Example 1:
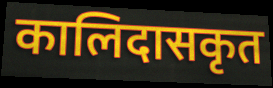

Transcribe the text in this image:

कालिदासकृत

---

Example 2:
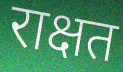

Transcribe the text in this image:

राक्षत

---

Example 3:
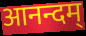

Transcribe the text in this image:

आनन्दम्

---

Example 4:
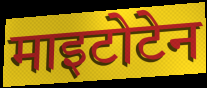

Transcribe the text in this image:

माइटोटेन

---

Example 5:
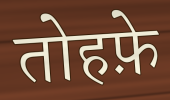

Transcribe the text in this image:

तोहफ़े